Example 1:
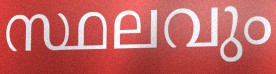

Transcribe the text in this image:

സ്ഥലവും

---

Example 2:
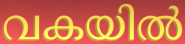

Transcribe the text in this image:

വകയിൽ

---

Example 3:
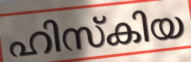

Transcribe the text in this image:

ഹിസ്കിയ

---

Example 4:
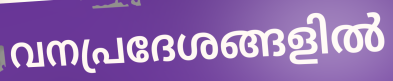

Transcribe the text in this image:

വനപ്രദേശങ്ങളിൽ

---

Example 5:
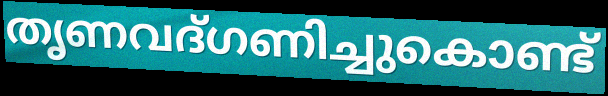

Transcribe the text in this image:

തൃണവദ്ഗണിച്ചുകൊണ്ട്